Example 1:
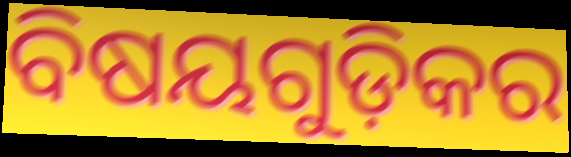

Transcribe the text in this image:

ବିଷୟଗୁଡ଼ିକର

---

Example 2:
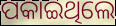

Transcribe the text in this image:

ପକାଇଥିଲେ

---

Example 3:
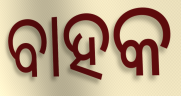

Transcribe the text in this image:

ବାହକ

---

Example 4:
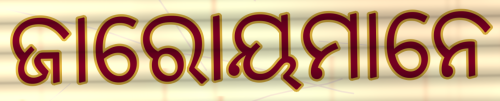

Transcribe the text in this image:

ଜାରୋୟମାନେ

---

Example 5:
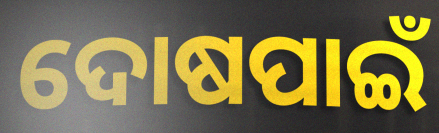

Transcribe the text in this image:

ଦୋଷପାଇଁ